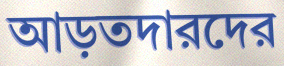
আড়তদারদের